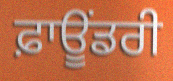
ਫ਼ਾਊਂਡਰੀ